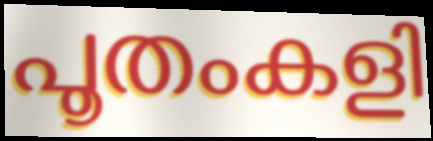
പൂതംകളി